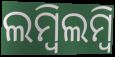
ଲମ୍ବିଲମ୍ବି